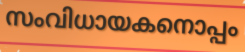
സംവിധായകനൊപ്പം